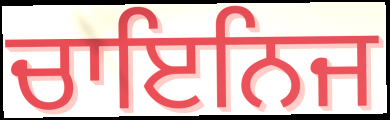
ਚਾਇਨਿਜ